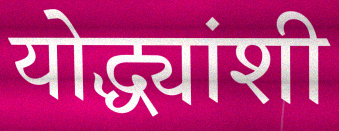
योद्ध्यांशी